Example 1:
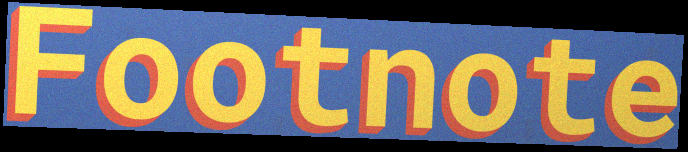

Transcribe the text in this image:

Footnote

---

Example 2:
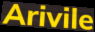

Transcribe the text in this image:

Arivile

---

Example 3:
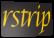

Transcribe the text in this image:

rstrip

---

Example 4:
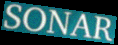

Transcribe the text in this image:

SONAR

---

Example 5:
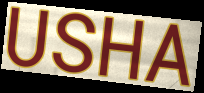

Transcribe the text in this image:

USHA